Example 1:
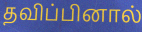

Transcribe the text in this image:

தவிப்பினால்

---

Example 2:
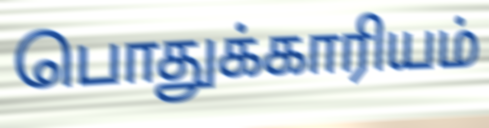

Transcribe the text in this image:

பொதுக்காரியம்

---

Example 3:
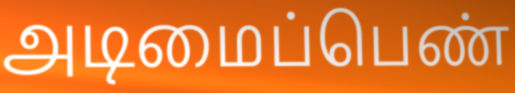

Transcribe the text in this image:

அடிமைப்பெண்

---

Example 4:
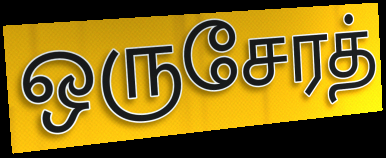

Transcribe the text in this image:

ஒருசேரத்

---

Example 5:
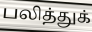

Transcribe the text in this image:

பலித்துக்